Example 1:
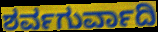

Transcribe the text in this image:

ಶರ್ವಗುರ್ವಾದಿ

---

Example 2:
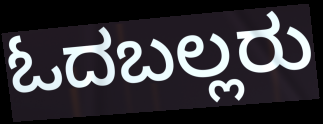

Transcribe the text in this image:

ಓದಬಲ್ಲರು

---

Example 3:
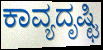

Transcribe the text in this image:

ಕಾವ್ಯದೃಷ್ಟಿ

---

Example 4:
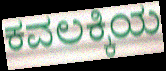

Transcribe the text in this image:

ಕವಲಕ್ಕಿಯ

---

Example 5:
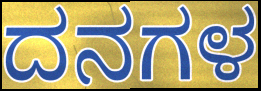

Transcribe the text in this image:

ದನಗಳ